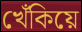
খেঁকিয়ে